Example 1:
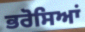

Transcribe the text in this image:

ਭਰੋਸਿਆਂ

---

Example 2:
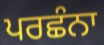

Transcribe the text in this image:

ਪਰਛੰਨਾ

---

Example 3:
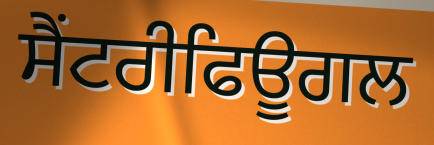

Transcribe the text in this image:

ਸੈਂਟਰੀਫਿਊਗਲ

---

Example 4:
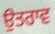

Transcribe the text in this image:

ਉਤਰਾਵ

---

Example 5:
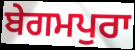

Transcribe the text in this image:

ਬੇਗਮਪੁਰਾ